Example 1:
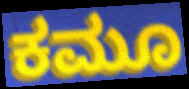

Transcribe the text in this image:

ಕಮೂ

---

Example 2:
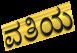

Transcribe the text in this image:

ವತಿಯ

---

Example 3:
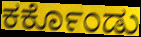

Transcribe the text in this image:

ಕರ್ಕೊಂಡು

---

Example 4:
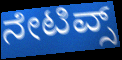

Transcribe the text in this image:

ನೇಟಿವ್ಸ್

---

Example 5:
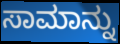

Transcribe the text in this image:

ಸಾಮಾನ್ನು